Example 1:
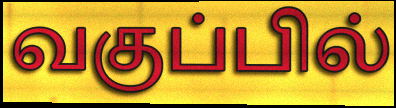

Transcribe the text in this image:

வகுப்பில்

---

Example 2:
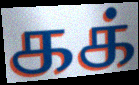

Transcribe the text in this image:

கக்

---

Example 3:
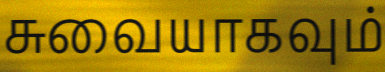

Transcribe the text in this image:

சுவையாகவும்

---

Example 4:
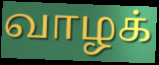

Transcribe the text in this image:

வாழக்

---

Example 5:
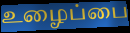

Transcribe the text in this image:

உழைப்பை